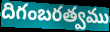
దిగంబరత్వము